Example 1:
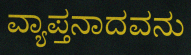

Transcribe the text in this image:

ವ್ಯಾಪ್ತನಾದವನು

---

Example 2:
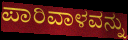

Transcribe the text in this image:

ಪಾರಿವಾಳವನ್ನು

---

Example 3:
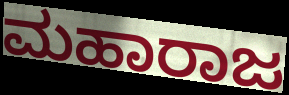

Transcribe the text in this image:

ಮಹಾರಾಜ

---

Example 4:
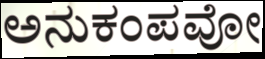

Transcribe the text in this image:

ಅನುಕಂಪವೋ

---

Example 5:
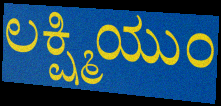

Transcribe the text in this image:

ಲಕ್ಷ್ಮಿಯುಂ